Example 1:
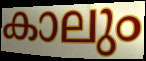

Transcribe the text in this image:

കാലും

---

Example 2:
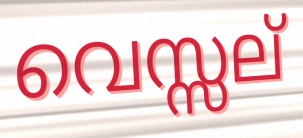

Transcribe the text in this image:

വെസ്സല്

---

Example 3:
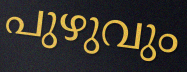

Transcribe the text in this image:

പുഴുവും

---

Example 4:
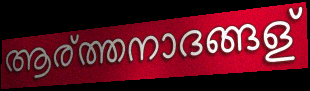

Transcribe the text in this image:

ആര്ത്തനാദങ്ങള്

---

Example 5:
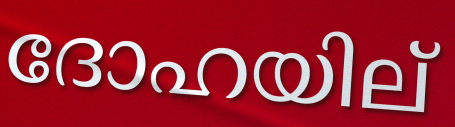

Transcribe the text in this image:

ദോഹയില്